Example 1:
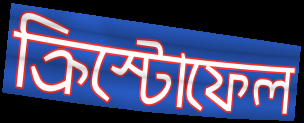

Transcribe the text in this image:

ক্রিস্টোফেল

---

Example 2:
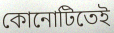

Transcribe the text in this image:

কোনোটিতেই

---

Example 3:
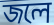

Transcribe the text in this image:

জলে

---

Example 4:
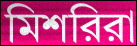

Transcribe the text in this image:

মিশরিরা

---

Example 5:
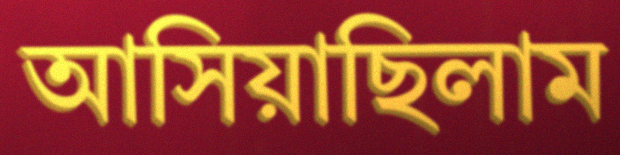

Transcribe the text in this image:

আসিয়াছিলাম